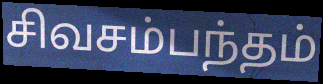
சிவசம்பந்தம்